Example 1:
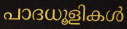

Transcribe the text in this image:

പാദധൂളികൾ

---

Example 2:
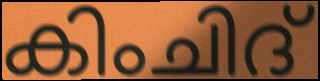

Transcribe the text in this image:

കിംചിദ്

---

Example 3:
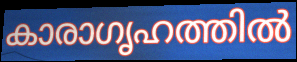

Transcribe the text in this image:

കാരാഗൃഹത്തിൽ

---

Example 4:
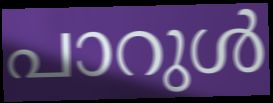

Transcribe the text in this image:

പാറുൾ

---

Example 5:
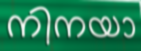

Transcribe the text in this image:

നിനയാ